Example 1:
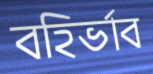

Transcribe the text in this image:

বহির্ভাব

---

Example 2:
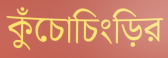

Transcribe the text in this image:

কুঁচোচিংড়ির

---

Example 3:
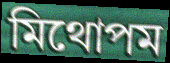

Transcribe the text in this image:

মিথোপম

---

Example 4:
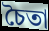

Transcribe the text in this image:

চৈতা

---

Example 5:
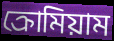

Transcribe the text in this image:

ক্রোমিয়াম